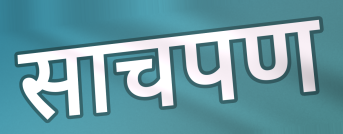
साचपण